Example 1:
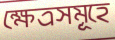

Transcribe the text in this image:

ক্ষেত্ৰসমূহে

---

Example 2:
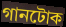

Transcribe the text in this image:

গানটোক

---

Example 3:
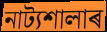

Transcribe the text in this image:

নাট্যশালাৰ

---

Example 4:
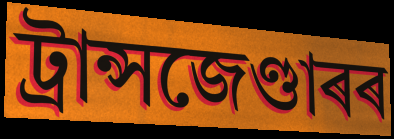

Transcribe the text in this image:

ট্ৰান্সজেণ্ডাৰৰ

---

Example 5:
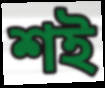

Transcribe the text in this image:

শই